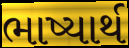
ભાષ્યાર્થ